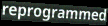
reprogrammed